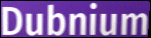
Dubnium